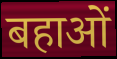
बहाओं